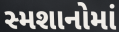
સ્મશાનોમાં